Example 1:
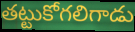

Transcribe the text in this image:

తట్టుకోగలిగాడు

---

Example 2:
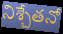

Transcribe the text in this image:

నిశ్చేతనో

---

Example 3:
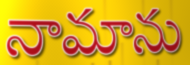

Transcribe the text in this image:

నామాను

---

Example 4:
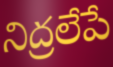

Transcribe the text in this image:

నిద్రలేపే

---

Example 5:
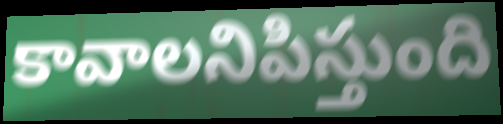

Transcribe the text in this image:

కావాలనిపిస్తుంది